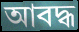
আবদ্ধ